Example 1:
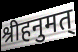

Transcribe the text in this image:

श्रीहनुमत्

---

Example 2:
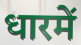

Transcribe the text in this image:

धारमें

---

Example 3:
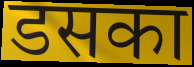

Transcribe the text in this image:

डसका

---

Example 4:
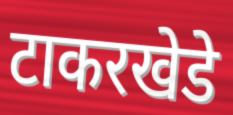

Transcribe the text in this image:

टाकरखेडे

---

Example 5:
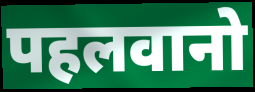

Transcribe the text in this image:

पहलवानो